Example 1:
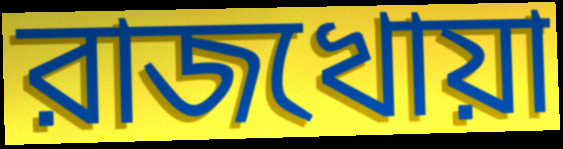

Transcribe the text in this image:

রাজখোয়া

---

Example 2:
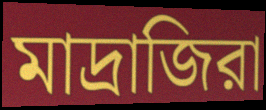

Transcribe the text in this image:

মাদ্রাজিরা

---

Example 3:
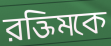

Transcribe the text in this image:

রক্তিমকে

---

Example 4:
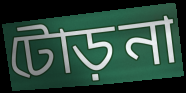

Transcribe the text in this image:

টোড়না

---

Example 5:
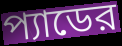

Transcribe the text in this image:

প্যাডের